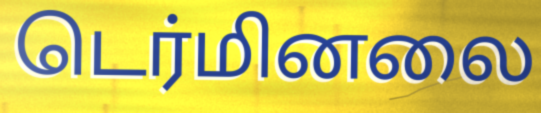
டெர்மினலை